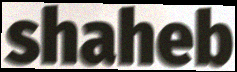
shaheb